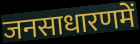
जनसाधारणमें